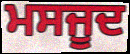
ਮਸਜੂਦ